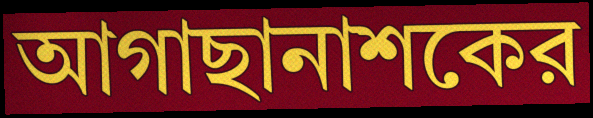
আগাছানাশকের